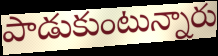
పాడుకుంటున్నారు